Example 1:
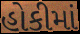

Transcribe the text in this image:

હોકીમાં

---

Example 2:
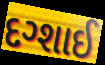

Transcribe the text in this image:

દગ્શાઈ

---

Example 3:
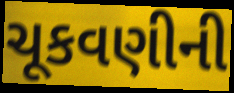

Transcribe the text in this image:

ચૂકવણીની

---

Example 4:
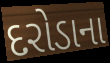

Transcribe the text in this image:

દરોડાના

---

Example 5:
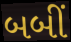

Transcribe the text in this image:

બબીં